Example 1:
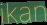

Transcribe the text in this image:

ikan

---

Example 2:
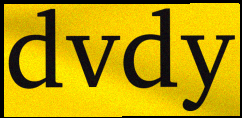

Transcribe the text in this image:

dvdy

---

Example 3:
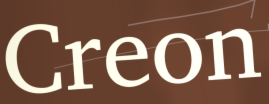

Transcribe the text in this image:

Creon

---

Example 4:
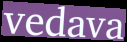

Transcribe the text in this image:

vedava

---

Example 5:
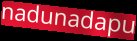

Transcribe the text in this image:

nadunadapu